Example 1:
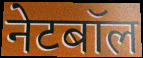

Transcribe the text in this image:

नेटबॉल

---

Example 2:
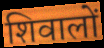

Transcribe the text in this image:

शिवालों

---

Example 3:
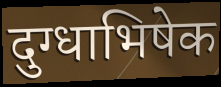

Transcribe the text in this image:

दुग्धाभिषेक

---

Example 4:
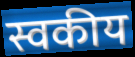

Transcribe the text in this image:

स्वकीय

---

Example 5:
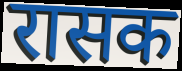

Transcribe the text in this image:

रासक